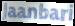
Jaanbari